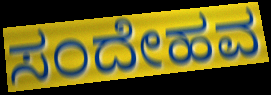
ಸಂದೇಹವ